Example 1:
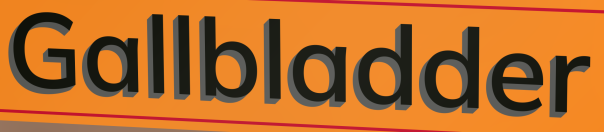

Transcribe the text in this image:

Gallbladder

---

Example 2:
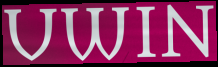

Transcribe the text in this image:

UWIN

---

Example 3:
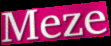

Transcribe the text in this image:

Meze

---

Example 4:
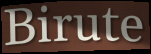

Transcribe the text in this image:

Birute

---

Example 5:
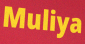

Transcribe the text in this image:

Muliya